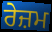
ਰੇਜ਼ਮ